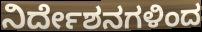
ನಿರ್ದೇಶನಗಳಿಂದ